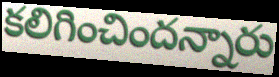
కలిగించిందన్నారు